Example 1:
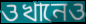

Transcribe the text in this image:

ওখানেও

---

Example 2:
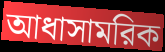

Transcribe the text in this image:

আধাসামরিক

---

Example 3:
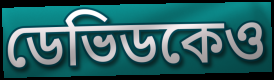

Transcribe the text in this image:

ডেভিডকেও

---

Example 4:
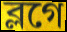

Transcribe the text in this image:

ব্লগে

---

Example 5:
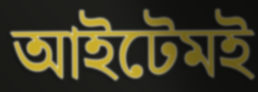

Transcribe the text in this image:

আইটেমই